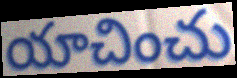
యాచించు